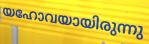
യഹോവയായിരുന്നു